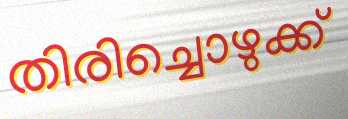
തിരിച്ചൊഴുക്ക്